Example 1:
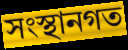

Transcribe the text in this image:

সংস্থানগত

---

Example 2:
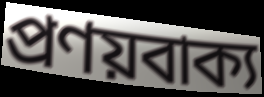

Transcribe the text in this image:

প্রণয়বাক্য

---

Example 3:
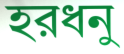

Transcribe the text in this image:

হরধনু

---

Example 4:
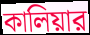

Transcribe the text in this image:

কালিয়ার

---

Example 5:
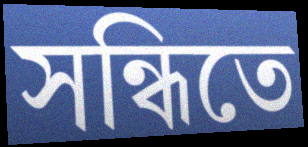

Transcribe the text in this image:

সন্ধিতে